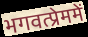
भगवत्प्रेममें